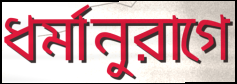
ধর্মানুরাগে